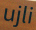
ujli